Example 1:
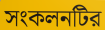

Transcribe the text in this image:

সংকলনটির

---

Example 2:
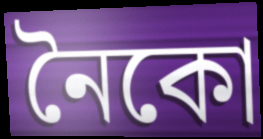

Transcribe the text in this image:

নৈকো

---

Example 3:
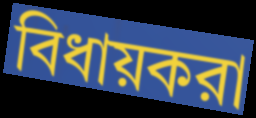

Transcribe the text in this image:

বিধায়করা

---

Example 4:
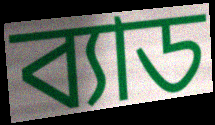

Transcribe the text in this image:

ব্যাড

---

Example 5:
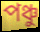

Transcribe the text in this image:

পঞ্চু